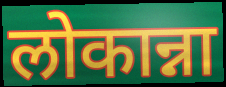
लोकान्ना